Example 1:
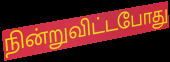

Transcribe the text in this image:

நின்றுவிட்டபோது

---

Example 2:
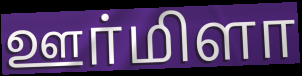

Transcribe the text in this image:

ஊர்மிளா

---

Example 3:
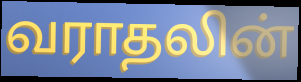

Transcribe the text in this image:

வராதலின்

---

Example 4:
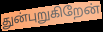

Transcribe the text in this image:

துன்புறுகிறேன்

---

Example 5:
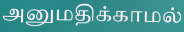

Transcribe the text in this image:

அனுமதிக்காமல்